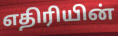
எதிரியின்